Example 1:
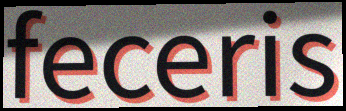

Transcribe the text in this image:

feceris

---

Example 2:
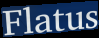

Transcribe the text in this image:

Flatus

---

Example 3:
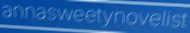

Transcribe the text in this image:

annasweetynovelist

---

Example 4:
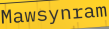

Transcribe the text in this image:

Mawsynram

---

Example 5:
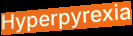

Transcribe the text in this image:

Hyperpyrexia